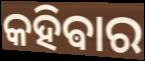
କହିଵାର